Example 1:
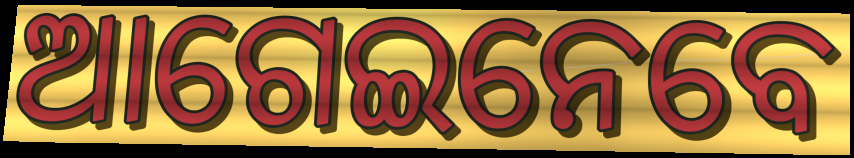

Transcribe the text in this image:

ଆଗେଇନେବେ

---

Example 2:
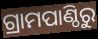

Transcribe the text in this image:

ଗ୍ରାମପାଣ୍ଠିରୁ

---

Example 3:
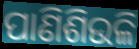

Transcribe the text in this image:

ପାଣିଶିଉଳି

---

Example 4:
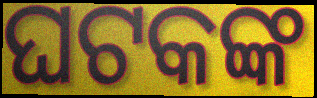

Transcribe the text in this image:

ଘଟକଙ୍କ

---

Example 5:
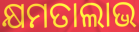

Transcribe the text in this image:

କ୍ଷମତାଲାଭ